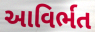
આવિર્ભત